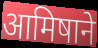
आमिषाने